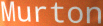
Murton